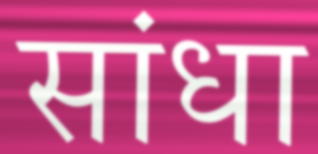
सांधा